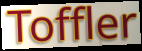
Toffler